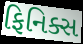
ફિનિક્સ